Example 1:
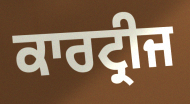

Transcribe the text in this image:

ਕਾਰਟ੍ਰੀਜ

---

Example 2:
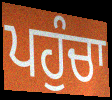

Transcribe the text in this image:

ਪਹੁੰਚਾ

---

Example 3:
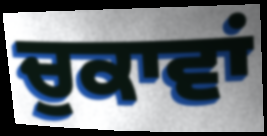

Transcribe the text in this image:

ਚੁਕਾਵਾਂ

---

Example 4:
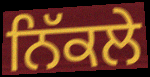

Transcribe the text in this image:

ਨਿੱਕਲੇ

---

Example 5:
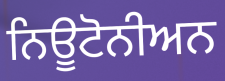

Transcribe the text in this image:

ਨਿਊਟੋਨੀਅਨ